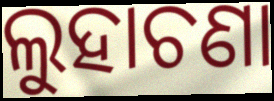
ଲୁହାଚଣା